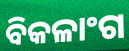
ବିକଳାଂଗ